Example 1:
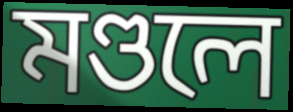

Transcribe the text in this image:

মণ্ডলে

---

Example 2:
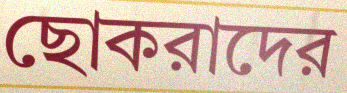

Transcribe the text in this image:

ছোকরাদের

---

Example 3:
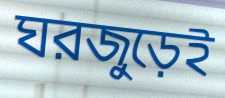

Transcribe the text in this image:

ঘরজুড়েই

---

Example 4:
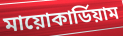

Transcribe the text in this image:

মায়োকার্ডিয়াম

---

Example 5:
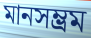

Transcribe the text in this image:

মানসম্ভ্রম